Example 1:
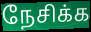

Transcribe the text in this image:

நேசிக்க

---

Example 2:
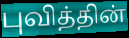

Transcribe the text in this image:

புவித்தின்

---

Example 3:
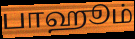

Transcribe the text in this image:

பாஹூம்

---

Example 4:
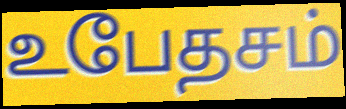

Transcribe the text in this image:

உபேதசம்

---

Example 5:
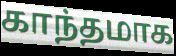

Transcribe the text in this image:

காந்தமாக